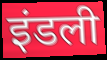
इंडली